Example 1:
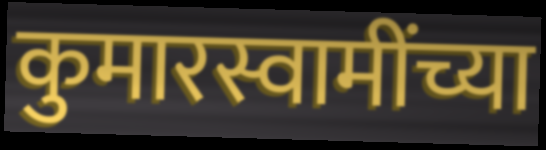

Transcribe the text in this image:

कुमारस्वामींच्या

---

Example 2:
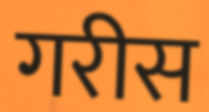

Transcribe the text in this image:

गरीस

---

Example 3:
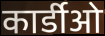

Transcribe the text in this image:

कार्डीओ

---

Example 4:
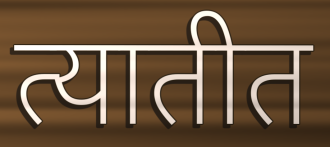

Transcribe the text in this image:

त्यातीत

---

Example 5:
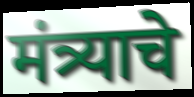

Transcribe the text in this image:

मंत्र्याचे